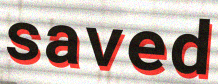
saved